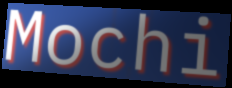
Mochi